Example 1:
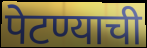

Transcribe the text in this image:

पेटण्याची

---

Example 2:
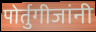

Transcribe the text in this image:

पोर्तुगीजांनी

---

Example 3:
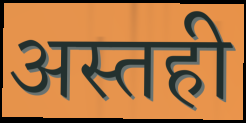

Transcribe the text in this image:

अस्तही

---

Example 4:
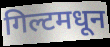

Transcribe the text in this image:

गिल्टमधून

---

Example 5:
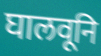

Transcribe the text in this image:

घालवूनि